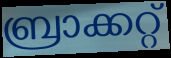
ബ്രാക്കറ്റ്